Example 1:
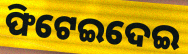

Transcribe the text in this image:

ଫିଟେଇଦେଇ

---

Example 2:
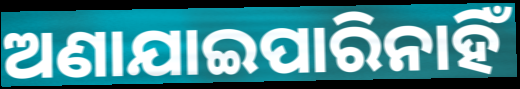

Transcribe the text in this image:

ଅଣାଯାଇପାରିନାହିଁ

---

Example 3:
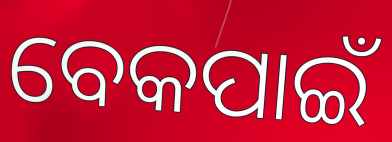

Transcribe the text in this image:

ବେକପାଇଁ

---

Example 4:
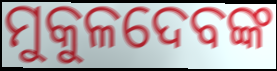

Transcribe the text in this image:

ମୁକୁଳଦେବଙ୍କ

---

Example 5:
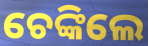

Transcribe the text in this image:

ଚେଙ୍କିଲେ